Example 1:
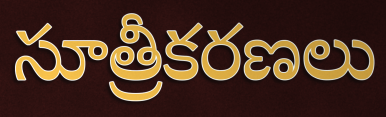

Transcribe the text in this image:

సూత్రీకరణలు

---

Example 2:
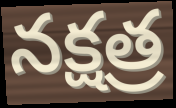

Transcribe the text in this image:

నక్షత్ర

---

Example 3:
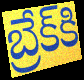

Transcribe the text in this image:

బ్రేక్‌కి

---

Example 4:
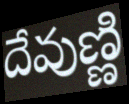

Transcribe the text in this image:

దేవుణ్ణి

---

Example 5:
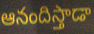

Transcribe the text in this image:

ఆనందిస్తాడా